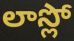
లాస్లో